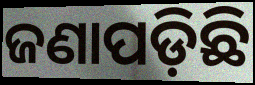
ଜଣାପଡ଼ିଛି